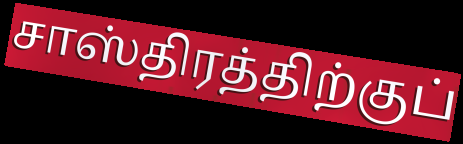
சாஸ்திரத்திற்குப்